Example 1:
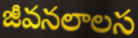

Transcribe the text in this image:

జీవనలాలస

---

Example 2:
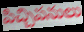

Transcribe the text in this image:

పిచ్చిపనులు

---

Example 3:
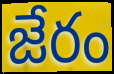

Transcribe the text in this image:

జేరం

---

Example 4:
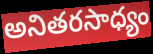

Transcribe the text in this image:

అనితరసాధ్యం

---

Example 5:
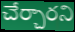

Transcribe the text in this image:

చేర్చారని